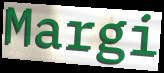
Margi